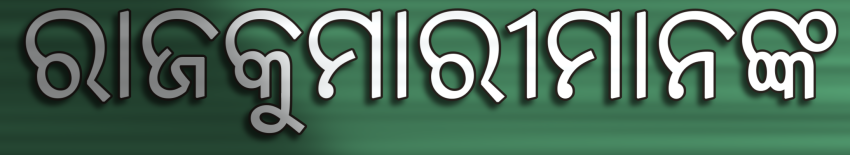
ରାଜକୁମାରୀମାନଙ୍କ